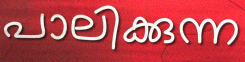
പാലിക്കുന്ന